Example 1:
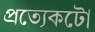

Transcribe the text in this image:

প্ৰত্যেকটো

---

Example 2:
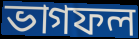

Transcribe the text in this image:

ভাগফল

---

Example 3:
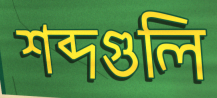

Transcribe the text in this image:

শব্দগুলি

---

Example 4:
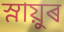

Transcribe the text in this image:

স্নায়ুৰ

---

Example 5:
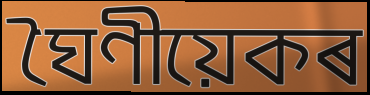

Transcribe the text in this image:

ঘৈণীয়েকৰ